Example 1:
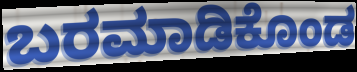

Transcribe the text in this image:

ಬರಮಾಡಿಕೊಂಡ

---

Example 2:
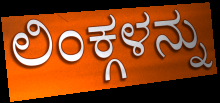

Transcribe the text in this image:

ಲಿಂಕ್ಗಳನ್ನು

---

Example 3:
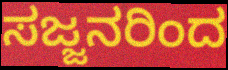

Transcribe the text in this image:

ಸಜ್ಜನರಿಂದ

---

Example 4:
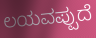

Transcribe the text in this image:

ಲಯವಪ್ಪುದೆ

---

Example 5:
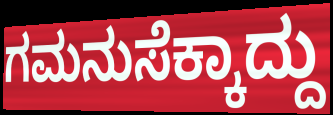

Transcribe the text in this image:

ಗಮನುಸೆಕ್ಕಾದ್ದು